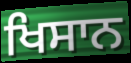
ਖਿਸਾਨ